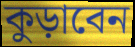
কুড়াবেন